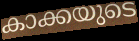
കാക്കയുടെ